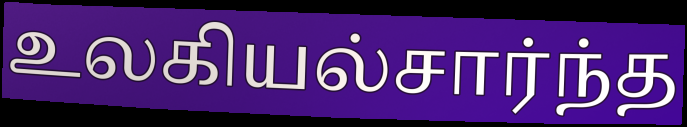
உலகியல்சார்ந்த